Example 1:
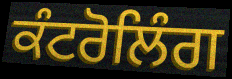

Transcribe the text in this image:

ਕੰਟਰੋਲਿੰਗ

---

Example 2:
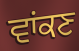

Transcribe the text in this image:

ਵਾਂਕਣ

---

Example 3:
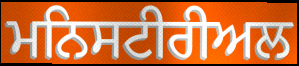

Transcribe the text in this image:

ਮਨਿਸਟੀਰੀਅਲ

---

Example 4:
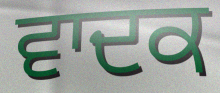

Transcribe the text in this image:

ਵਾਦਕ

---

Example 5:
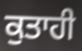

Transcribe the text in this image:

ਕੁਤਾਹੀ